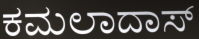
ಕಮಲಾದಾಸ್